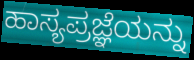
ಹಾಸ್ಯಪ್ರಜ್ಞೆಯನ್ನು